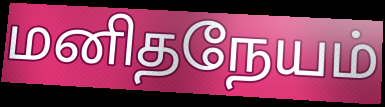
மனிதநேயம்